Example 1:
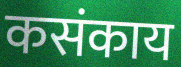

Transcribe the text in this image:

कसंकाय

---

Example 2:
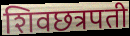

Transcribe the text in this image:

शिवछत्रपती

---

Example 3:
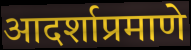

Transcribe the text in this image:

आदर्शाप्रमाणे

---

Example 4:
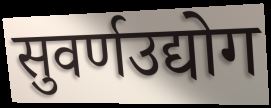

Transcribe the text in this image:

सुवर्णउद्योग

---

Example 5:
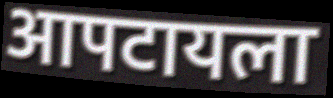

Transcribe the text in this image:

आपटायला